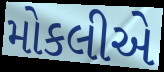
મોકલીએ